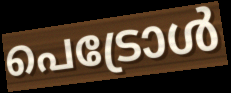
പെട്രോൾ